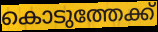
കൊടുത്തേക്ക്